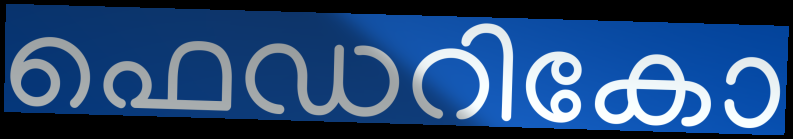
ഫെഡറികോ